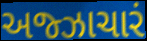
અજ્ઝાચારં